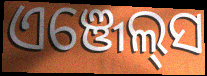
ଏଞ୍ଜେଲ୍‍ସ